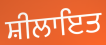
ਸ਼ੀਲਾਇਤ